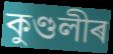
কুণ্ডলীৰ